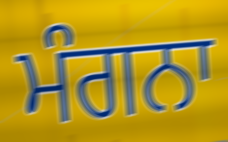
ਮੰਗਨਾ